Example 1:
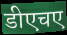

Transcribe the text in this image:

डीएचए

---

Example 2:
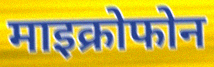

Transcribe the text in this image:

माइक्रोफोन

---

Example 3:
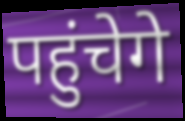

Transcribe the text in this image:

पहुंचेगे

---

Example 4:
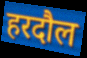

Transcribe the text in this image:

हरदौल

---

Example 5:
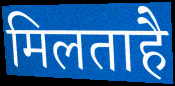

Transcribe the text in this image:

मिलताहै